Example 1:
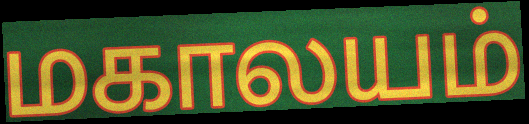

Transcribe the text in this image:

மகாலயம்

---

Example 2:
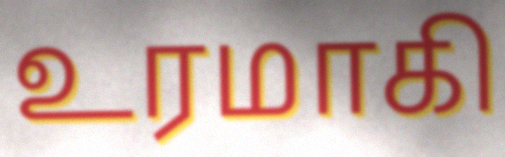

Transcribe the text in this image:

உரமாகி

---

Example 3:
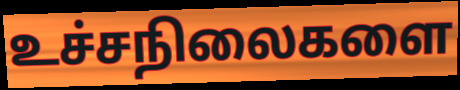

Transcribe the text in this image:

உச்சநிலைகளை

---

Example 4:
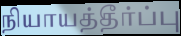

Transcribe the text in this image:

நியாயத்தீர்ப்பு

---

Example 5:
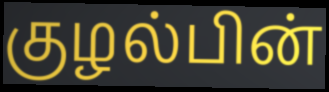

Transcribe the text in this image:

குழல்பின்